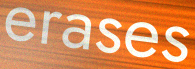
erases